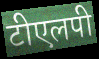
टीएलपी